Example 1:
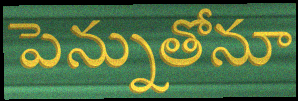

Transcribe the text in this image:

పెన్నుతోనూ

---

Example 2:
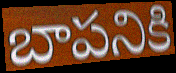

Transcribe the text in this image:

బాపనికి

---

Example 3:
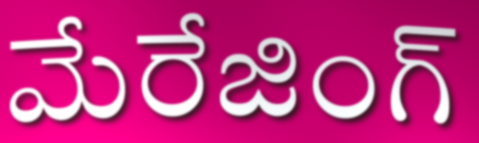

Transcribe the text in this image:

మేరేజింగ్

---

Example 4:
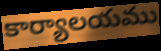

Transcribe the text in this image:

కార్యాలయము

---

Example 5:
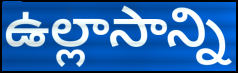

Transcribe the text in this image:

ఉల్లాసాన్ని